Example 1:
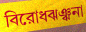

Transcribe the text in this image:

বিরোধঝঞ্ঝনা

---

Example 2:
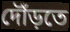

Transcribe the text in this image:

দৌঁড়তে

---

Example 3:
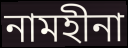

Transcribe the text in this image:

নামহীনা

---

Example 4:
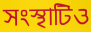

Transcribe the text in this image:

সংস্থাটিও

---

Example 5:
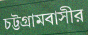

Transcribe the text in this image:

চট্টগ্রামবাসীর